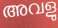
അവളു